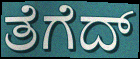
ತೆಗೆದ್